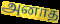
அனாத